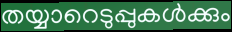
തയ്യാറെടുപ്പുകൾക്കും